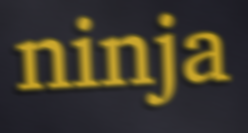
ninja